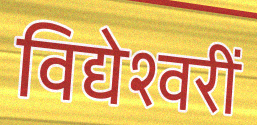
विद्येश्वरीं